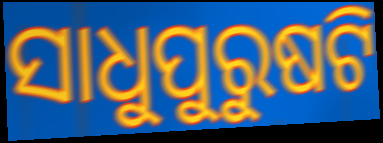
ସାଧୁପୁରୁଷଟି